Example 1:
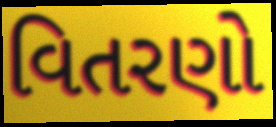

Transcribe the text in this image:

વિતરણો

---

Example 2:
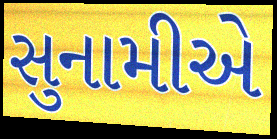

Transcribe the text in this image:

સુનામીએ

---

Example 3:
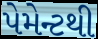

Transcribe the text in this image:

પેમેન્ટથી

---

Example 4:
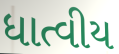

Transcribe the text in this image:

ધાત્વીય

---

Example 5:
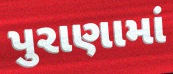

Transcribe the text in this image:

પુરાણામાં